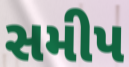
સમીપ